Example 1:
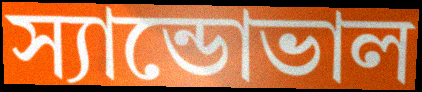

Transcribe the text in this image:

স্যান্ডোভাল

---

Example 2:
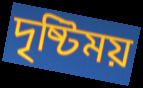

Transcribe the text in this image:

দৃষ্টিময়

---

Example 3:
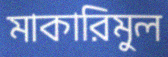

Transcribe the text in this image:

মাকারিমুল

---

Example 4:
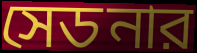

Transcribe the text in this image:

সেডনার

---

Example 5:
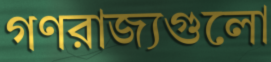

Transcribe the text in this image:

গণরাজ্যগুলো